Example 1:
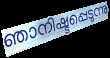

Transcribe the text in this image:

ഞാനിഷ്ടപ്പെടുന്നു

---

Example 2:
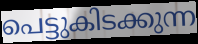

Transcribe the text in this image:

പെട്ടുകിടക്കുന്ന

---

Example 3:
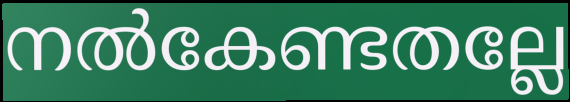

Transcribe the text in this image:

നൽകേണ്ടതല്ലേ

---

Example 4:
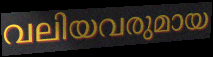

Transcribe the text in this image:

വലിയവരുമായ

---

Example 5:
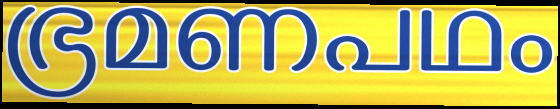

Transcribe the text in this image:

ഭ്രമണപഥം